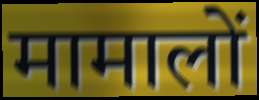
मामालों